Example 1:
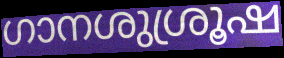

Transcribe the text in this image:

ഗാനശുശ്രൂഷ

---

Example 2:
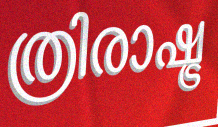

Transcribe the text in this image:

ത്രിരാഷ്ട്ര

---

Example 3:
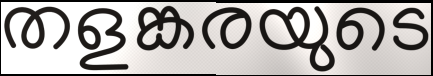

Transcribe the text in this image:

തളങ്കരയുടെ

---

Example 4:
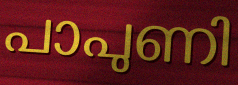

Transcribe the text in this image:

പാപുണി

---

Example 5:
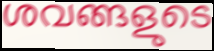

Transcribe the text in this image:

ശവങ്ങളുടെ